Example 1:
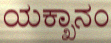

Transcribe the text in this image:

ಯಕ್ಖಾನಂ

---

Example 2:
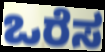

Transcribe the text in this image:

ಒರೆಸ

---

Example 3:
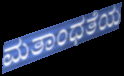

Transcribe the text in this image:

ಮತಾಂಧತೆಯ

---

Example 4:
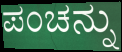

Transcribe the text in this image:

ಪಂಚನ್ನು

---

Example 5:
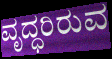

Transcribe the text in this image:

ವೃದ್ಧರಿರುವ